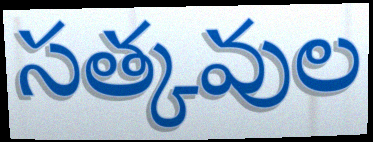
సత్కవుల